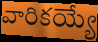
వారికయ్యే